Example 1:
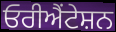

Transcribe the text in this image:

ਓਰੀਐਂਟੇਸ਼ਨ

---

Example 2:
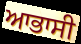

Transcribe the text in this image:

ਆਭਾਸੀ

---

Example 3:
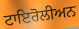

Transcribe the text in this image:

ਟਾਇਰੋਲੀਅਨ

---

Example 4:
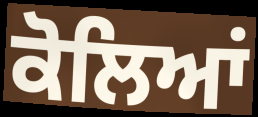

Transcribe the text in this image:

ਕੋਲਿਆਂ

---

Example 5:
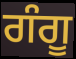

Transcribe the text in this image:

ਗੰਗੂ